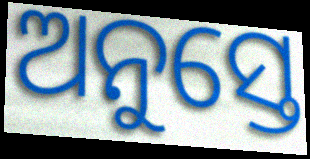
ଅନୁସ୍ତେ